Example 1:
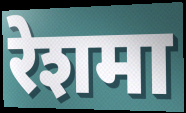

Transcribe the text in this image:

रेशमा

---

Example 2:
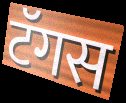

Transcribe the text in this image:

टॅगस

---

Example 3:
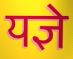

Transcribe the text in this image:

यज्ञे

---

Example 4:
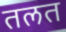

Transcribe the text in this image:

तलत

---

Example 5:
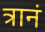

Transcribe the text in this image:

त्रानं